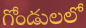
గోండులలో